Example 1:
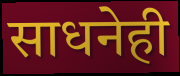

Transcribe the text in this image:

साधनेही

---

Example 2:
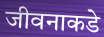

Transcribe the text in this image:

जीवनाकडे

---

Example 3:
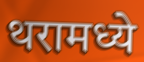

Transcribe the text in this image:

थरामध्ये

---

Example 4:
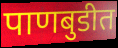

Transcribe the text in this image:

पाणबुडीत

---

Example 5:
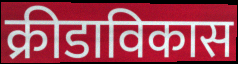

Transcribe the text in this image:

क्रीडाविकास